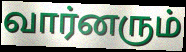
வார்னரும்